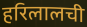
हरिलालची